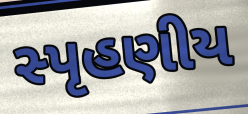
સ્પૃહણીય